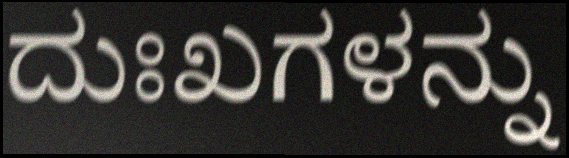
ದುಃಖಗಳನ್ನು